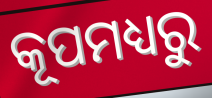
କୂପମଧ୍ୟରୁ